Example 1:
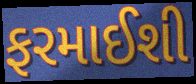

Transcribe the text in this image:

ફરમાઈશી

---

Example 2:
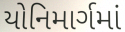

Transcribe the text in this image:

યોનિમાર્ગમાં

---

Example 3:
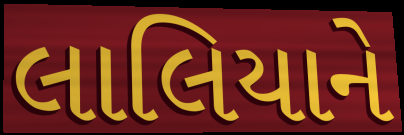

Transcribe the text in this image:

લાલિયાને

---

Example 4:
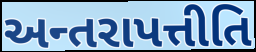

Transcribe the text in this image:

અન્તરાપત્તીતિ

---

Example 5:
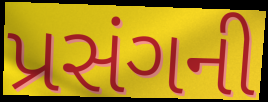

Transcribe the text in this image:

પ્રસંગની